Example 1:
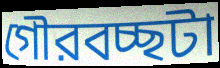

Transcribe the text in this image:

গৌরবচ্ছটা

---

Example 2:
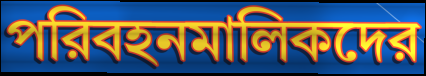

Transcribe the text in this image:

পরিবহনমালিকদের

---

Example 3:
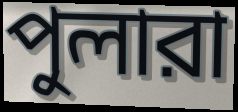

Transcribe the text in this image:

পুলারা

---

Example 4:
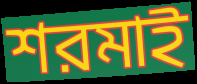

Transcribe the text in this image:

শরমাই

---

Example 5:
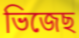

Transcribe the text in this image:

ভিজেছ